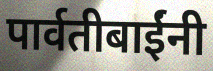
पार्वतीबाईंनी